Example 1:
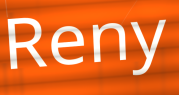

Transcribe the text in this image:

Reny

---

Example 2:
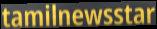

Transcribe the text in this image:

tamilnewsstar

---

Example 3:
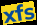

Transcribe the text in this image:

xfs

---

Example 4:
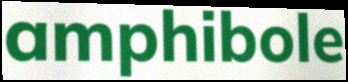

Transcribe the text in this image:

amphibole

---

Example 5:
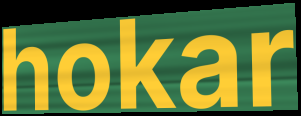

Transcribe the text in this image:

hokar